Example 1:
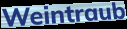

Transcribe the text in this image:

Weintraub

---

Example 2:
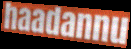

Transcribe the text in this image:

haadannu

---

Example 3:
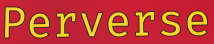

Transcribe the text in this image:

Perverse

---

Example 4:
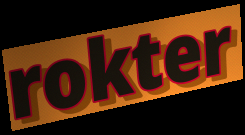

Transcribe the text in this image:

rokter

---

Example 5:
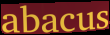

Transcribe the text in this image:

abacus